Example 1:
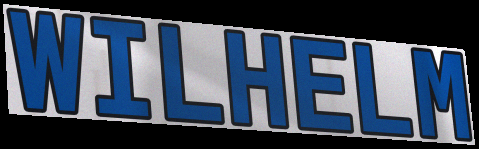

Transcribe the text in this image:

WILHELM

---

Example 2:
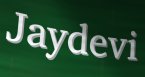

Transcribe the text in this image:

Jaydevi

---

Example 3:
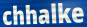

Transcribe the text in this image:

chhalke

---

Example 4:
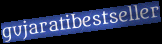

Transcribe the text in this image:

gujaratibestseller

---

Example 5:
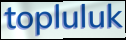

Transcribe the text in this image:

topluluk